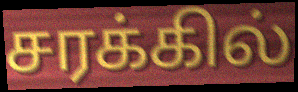
சரக்கில்